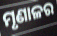
ମୃଣାଳର